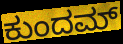
ಕುಂದಮ್